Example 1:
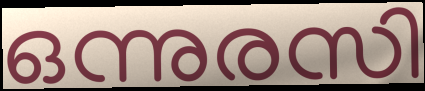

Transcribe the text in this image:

ഒന്നുരസി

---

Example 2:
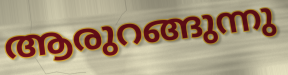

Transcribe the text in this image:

ആരുറങ്ങുന്നു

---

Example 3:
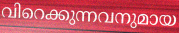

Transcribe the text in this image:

വിറെക്കുന്നവനുമായ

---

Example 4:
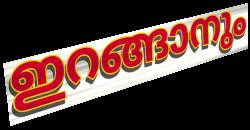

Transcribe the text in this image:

ഇറങ്ങാനും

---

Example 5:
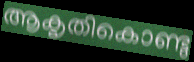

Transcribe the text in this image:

ആകൃതികൊണ്ടു